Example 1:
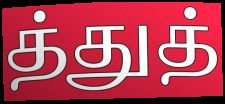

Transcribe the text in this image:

த்துத்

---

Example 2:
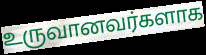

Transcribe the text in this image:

உருவானவர்களாக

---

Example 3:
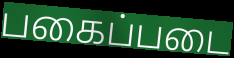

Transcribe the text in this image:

பகைப்படை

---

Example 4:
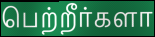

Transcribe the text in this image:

பெற்றீர்களா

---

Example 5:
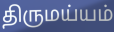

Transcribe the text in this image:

திருமய்யம்